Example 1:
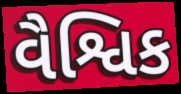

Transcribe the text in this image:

વૈશ્વિક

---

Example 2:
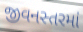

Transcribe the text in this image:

જીવનસ્તરમાં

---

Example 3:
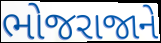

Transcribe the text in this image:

ભોજરાજાને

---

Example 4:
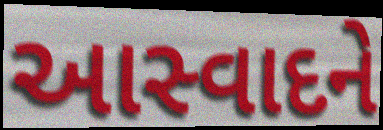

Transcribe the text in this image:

આસ્વાદને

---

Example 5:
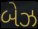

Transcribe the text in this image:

બેઝ